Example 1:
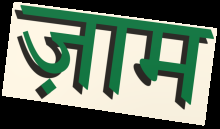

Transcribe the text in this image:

ज़ाम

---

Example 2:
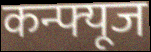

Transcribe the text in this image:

कन्फ्यूज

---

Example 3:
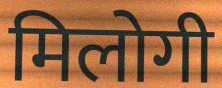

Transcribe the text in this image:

मिलोगी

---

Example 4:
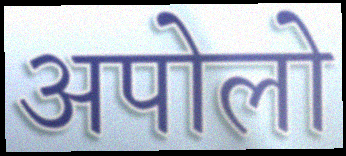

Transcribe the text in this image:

अपोलो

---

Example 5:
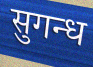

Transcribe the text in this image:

सुगन्ध